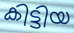
കിട്ടിയ